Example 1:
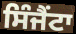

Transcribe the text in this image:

ਸਿੰਜੈਂਟਾ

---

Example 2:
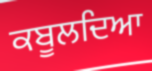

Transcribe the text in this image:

ਕਬੂਲਦਿਆ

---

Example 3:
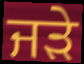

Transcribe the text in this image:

ਜੜੇ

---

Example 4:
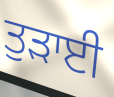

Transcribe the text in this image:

ਤੁੜਾਈ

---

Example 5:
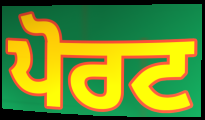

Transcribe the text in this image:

ਪੋਰਟ